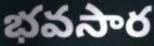
భవసార